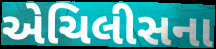
એચિલીસના